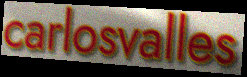
carlosvalles